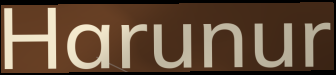
Harunur